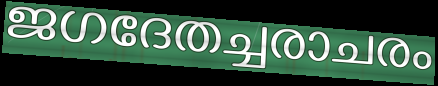
ജഗദേതച്ചരാചരം